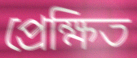
প্রেক্ষিত